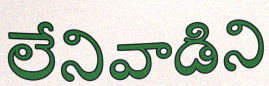
లేనివాడిని